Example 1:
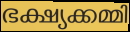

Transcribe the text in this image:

ഭക്ഷ്യക്കമ്മി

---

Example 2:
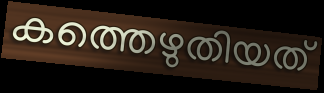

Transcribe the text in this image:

കത്തെഴുതിയത്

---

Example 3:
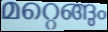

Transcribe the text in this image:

മറ്റെങ്ങും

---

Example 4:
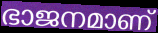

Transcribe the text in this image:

ഭാജനമാണ്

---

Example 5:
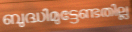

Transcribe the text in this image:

ബുദ്ധിമുട്ടേണ്ടതില്ല